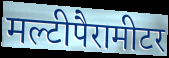
मल्टीपैरामीटर